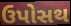
ઉપોસથ